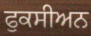
ਫੁਕਸੀਅਨ